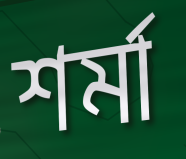
শৰ্মা